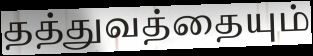
தத்துவத்தையும்